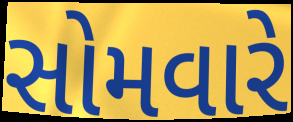
સોમવારે